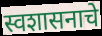
स्वशासनाचे